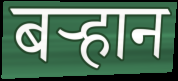
बऱ्हान